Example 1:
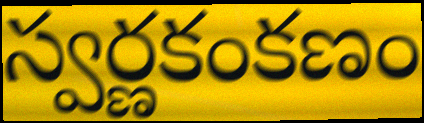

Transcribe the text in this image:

స్వర్ణకంకణం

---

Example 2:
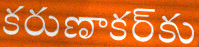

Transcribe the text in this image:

కరుణాకర్‌కు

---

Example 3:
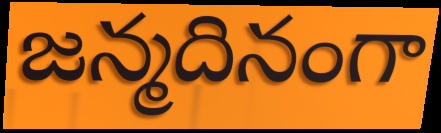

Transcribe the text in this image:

జన్మదినంగా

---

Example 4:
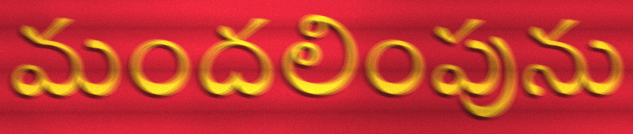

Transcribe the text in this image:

మందలింపును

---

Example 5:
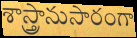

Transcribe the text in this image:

శాస్త్రానుసారంగా